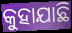
କୁହାଯାଛି